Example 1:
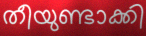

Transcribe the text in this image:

തീയുണ്ടാക്കി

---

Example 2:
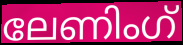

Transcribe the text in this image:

ലേണിംഗ്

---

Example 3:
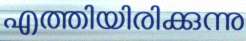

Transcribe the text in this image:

എത്തിയിരിക്കുന്നു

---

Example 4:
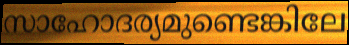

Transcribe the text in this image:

സാഹോദര്യമുണ്ടെങ്കിലേ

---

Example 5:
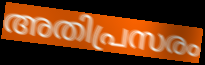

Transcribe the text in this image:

അതിപ്രസരം